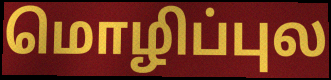
மொழிப்புல